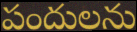
పందులను